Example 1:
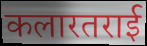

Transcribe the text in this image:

कलारतराई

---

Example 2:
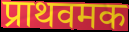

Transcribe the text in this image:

प्राथवमक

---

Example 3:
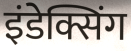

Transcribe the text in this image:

इंडेक्सिंग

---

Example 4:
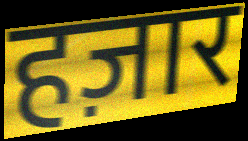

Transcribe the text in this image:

हज़ार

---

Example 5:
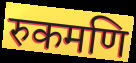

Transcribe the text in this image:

रुकमणि